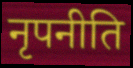
नृपनीति